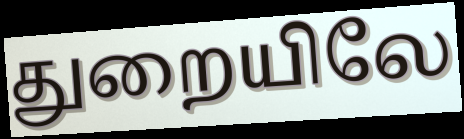
துறையிலே